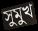
সুমুখ